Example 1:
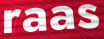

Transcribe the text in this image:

raas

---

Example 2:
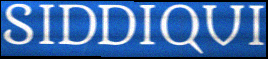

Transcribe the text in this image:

SIDDIQUI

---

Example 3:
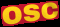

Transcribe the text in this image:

osc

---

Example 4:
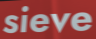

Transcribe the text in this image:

sieve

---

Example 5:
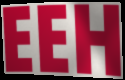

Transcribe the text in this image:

EEH